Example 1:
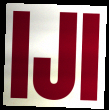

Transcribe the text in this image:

IJI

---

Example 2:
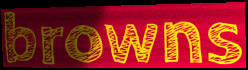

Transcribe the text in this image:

browns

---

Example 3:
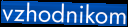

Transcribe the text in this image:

vzhodnikom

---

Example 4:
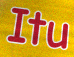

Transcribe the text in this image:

Itu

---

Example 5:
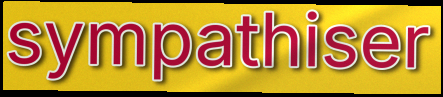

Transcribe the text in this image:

sympathiser